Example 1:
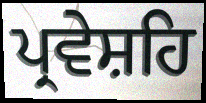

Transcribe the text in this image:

ਪ੍ਰਵੇਸ਼ਹਿ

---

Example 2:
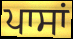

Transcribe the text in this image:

ਪਾਸਾਂ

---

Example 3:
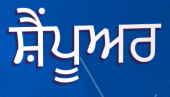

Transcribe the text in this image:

ਸ਼ੈਂਪੂਅਰ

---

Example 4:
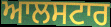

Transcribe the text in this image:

ਆਲਸਟਾਰ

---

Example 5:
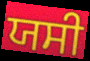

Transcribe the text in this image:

ਯਸੀ